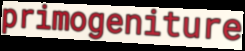
primogeniture